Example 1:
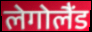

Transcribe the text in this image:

लेगोलैंड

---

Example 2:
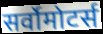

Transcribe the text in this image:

सर्वोमोटर्स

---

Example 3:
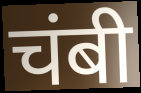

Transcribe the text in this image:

चंबी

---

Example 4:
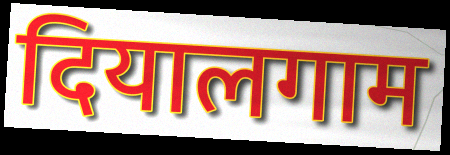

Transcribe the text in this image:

दियालगाम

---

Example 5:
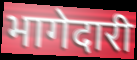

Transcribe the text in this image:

भागेदारी